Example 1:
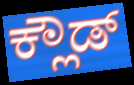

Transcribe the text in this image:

ಕ್ಲೌಡ್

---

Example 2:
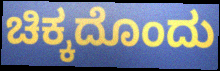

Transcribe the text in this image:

ಚಿಕ್ಕದೊಂದು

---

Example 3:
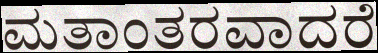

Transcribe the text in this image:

ಮತಾಂತರವಾದರೆ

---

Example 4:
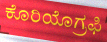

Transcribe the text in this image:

ಕೊರಿಯೊಗ್ರಫಿ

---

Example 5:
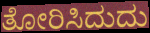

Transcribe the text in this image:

ತೋರಿಸಿದುದು